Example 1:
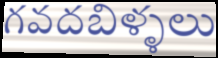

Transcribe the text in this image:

గవదబిళ్ళలు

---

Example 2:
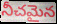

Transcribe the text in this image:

నీచమైన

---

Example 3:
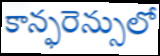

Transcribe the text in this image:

కాన్ఫరెన్సులో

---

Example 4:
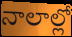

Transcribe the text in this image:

నాలాల్లో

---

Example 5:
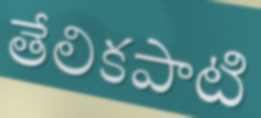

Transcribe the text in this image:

తేలికపాటి